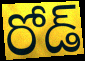
రోడ్